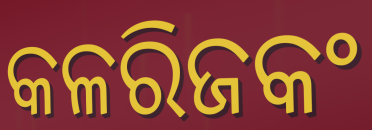
କଳରିଜକଂ